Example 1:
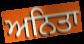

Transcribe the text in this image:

ਅਨਿਤਾ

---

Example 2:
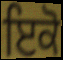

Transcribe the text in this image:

ਇਕੋ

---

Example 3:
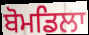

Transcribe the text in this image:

ਬੋਮਡਿਲਾ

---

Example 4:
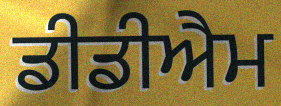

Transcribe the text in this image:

ਡੀਡੀਐਮ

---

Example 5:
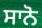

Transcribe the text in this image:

ਸਾਨੋ